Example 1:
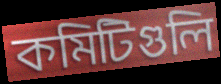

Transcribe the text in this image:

কমিটিগুলি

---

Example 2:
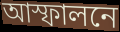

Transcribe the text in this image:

আস্ফালনে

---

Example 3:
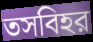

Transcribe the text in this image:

তসবিহর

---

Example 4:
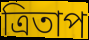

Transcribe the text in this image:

ত্রিতাপ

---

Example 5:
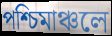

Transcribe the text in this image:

পশ্চিমাঞ্চলে